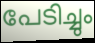
പേടിച്ചും